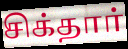
சிக்தார்